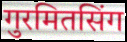
गुरमितसिंग